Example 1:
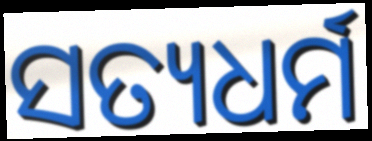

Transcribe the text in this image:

ସତ୍ୟଧର୍ମ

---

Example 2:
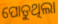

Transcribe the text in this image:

ପୋଡୁଥିଲା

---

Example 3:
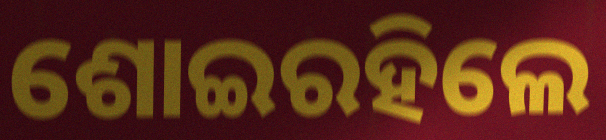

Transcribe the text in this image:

ଶୋଇରହିଲେ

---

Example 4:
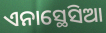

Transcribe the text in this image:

ଏନାସ୍ଥେସିଆ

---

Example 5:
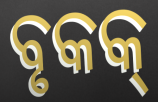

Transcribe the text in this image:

ବୃକକ୍